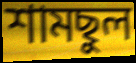
শামছুল